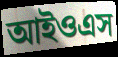
আইওএস